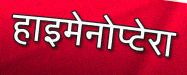
हाइमेनोप्टेरा